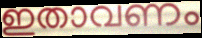
ഇതാവണം